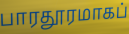
பாரதூரமாகப்